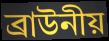
ব্ৰাউনীয়